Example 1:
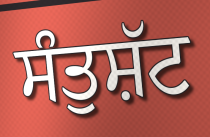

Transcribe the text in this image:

ਸੰਤੁਸ਼ੱਟ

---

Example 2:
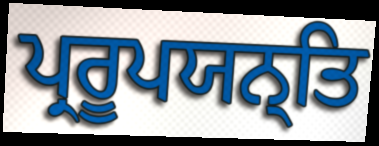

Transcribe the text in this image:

ਪ੍ਰਰੂਪਯਨ੍ਤਿ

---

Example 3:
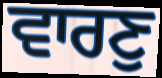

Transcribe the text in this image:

ਵਾਰਣੁ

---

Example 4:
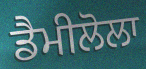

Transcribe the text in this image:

ਡੈਮੀਲੋਲਾ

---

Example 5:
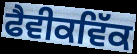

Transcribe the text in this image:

ਫੈਵੀਕਵਿੱਕ